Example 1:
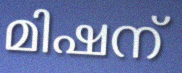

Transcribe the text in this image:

മിഷന്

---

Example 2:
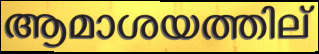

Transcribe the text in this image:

ആമാശയത്തില്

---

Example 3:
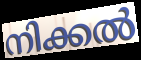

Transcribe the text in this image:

നിക്കൽ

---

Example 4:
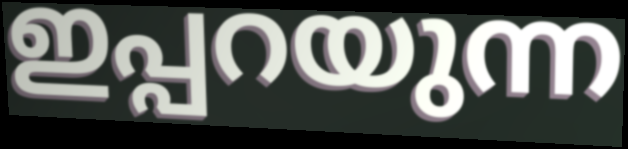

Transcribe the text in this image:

ഇപ്പറയുന്ന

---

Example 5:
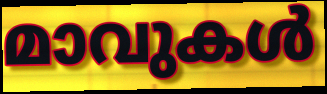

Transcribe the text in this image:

മാവുകൾ